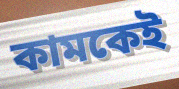
কামকেই